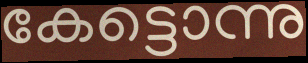
കേട്ടൊന്നു